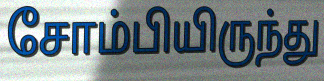
சோம்பியிருந்து